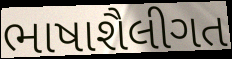
ભાષાશૈલીગત